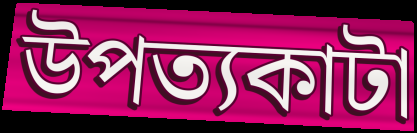
উপত্যকাটা